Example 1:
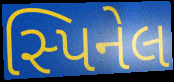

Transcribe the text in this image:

સ્પિનેલ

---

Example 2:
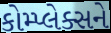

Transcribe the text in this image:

કોમ્પ્લેક્સને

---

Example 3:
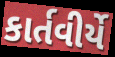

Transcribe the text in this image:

કાર્તવીર્યે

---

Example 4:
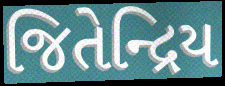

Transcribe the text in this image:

જિતેન્દ્રિય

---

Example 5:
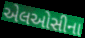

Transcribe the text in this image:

એલઓસીના